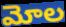
మోల